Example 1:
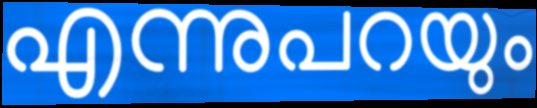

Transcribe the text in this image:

എന്നുപറയും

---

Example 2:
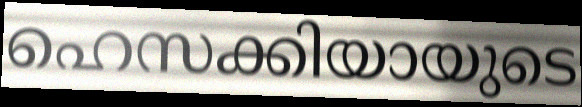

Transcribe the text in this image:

ഹെസക്കിയായുടെ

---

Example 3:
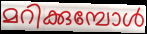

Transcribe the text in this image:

മറിക്കുമ്പോൾ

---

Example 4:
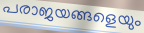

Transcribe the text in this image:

പരാജയങ്ങളെയും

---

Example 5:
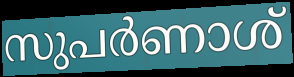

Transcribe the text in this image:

സുപർണാശ്